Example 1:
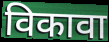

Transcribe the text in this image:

विकावा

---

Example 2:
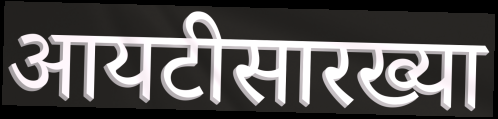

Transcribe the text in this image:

आयटीसारख्या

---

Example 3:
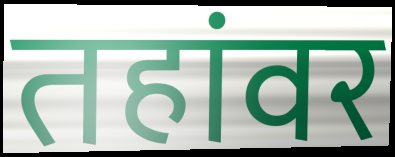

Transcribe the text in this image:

तहांवर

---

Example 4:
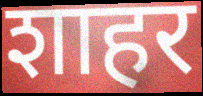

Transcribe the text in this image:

शाहर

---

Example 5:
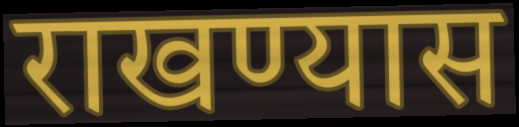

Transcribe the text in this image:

राखण्यास